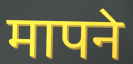
मापने